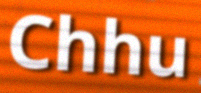
Chhu